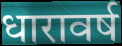
धारावर्ष